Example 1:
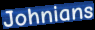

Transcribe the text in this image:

Johnians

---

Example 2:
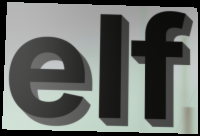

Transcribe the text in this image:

elf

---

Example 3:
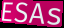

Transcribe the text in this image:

ESAs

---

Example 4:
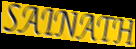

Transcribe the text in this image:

SAINATH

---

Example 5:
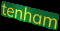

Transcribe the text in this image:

tenham